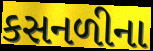
કસનળીના